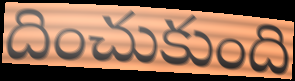
దించుకుంది